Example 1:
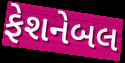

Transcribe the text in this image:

ફેશનેબલ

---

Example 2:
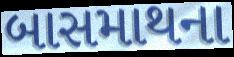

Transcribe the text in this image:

બાસમાથના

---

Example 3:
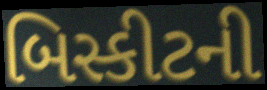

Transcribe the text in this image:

બિસ્કીટની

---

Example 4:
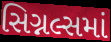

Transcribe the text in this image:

સિગ્નલ્સમાં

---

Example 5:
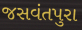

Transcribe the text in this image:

જસવંતપુરા